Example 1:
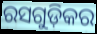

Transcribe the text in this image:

ରସଗୁଡ଼ିକର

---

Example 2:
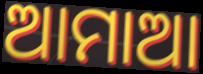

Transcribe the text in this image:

ଆମାଆ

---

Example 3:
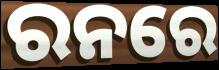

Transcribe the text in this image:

ରନରେ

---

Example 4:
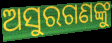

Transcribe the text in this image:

ଅସୁରଗଣଙ୍କୁ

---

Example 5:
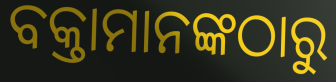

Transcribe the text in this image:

ବକ୍ତାମାନଙ୍କଠାରୁ